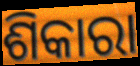
ଶିକାରା